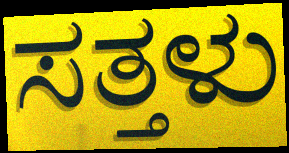
ಸತ್ತಳು